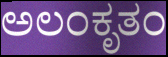
ಅಲಂಕೃತಂ